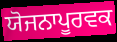
ਯੋਜਨਾਪੂਰਵਕ